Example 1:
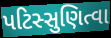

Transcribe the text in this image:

પટિસ્સુણિત્વા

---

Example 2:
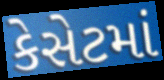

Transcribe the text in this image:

કેસેટમાં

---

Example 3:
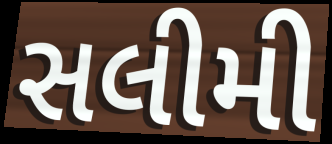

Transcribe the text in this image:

સલીમી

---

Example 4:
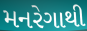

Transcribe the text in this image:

મનરેગાથી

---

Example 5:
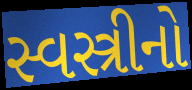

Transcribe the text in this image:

સ્વસ્ત્રીનો